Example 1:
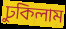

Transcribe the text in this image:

ঢুকিলাম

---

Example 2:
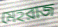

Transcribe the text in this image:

মেহরাজ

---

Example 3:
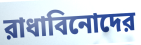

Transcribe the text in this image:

রাধাবিনোদের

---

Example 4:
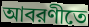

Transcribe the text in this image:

আবরণীতে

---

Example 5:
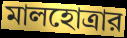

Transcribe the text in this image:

মালহোত্রার